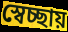
স্বেচ্ছায়